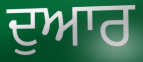
ਦੁਆਰ